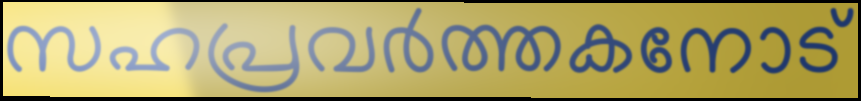
സഹപ്രവർത്തകനോട്